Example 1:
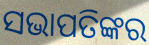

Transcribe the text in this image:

ସଭାପତିଙ୍କର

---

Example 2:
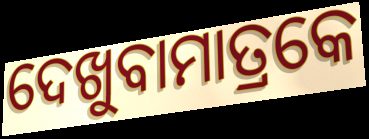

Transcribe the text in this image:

ଦେଖୁବାମାତ୍ରକେ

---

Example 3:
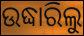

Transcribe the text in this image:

ଉଦ୍ଧାରିଲୁ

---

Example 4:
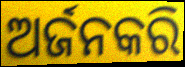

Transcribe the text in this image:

ଅର୍ଜନକରି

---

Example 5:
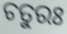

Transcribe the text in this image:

ଚତୁରଃ